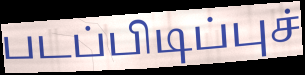
படப்பிடிப்புச்